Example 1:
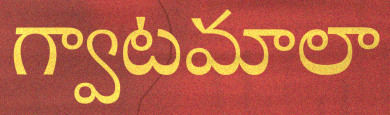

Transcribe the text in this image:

గ్వాటమాలా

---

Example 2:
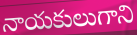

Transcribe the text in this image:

నాయకులుగాని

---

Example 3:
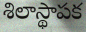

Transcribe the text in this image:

శిలాస్థాపక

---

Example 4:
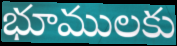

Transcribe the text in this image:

భూములకు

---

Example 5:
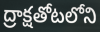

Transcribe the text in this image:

ద్రాక్షతోటలోని